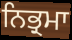
ਨਿਭ੍ਰਮਾ